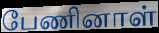
பேணினாள்